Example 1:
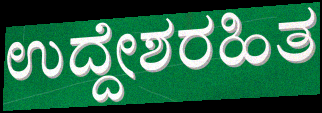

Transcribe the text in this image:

ಉದ್ದೇಶರಹಿತ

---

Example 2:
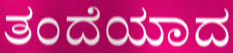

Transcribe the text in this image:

ತಂದೆಯಾದ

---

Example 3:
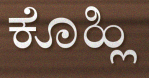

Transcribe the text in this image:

ಕೊಹ್ಲಿ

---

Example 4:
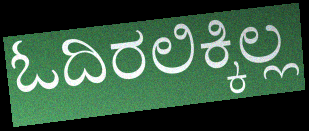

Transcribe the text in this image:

ಓದಿರಲಿಕ್ಕಿಲ್ಲ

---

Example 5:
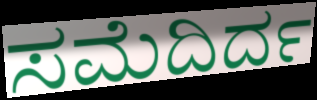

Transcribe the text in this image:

ಸಮೆದಿರ್ದ